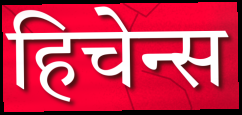
हिचेन्स